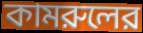
কামরুলের